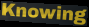
Knowing